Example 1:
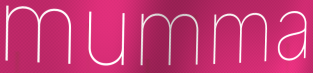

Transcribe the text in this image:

mumma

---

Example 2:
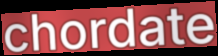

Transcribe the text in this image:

chordate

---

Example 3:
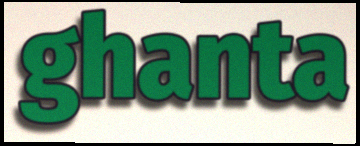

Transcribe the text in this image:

ghanta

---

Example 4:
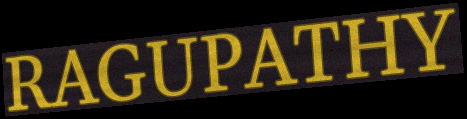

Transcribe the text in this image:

RAGUPATHY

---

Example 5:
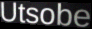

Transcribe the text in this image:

Utsobe